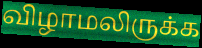
விழாமலிருக்க